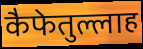
कैफेतुल्लाह